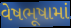
વેષભૂષામાં